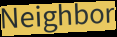
Neighbor